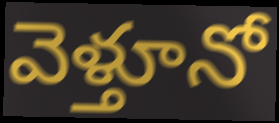
వెళ్తూనో